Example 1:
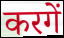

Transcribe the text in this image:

करगें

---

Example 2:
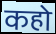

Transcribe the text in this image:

कहो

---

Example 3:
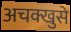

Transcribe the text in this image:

अचक्खुसे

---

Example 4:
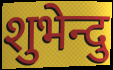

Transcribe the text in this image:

शुभेन्दु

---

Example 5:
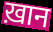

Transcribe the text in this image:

ख़ान